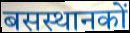
बसस्थानकों